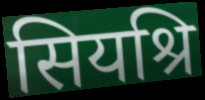
सियश्रि